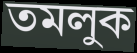
তমলুক